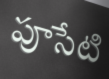
పూసేటి